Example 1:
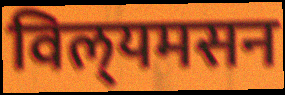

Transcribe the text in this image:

विल्यमसन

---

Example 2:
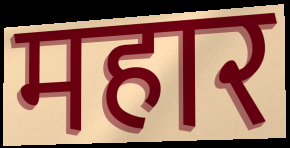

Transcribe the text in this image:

महार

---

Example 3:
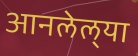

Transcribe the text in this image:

आनलेल्या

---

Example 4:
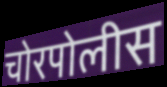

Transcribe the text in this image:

चोरपोलीस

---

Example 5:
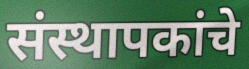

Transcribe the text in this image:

संस्थापकांचे